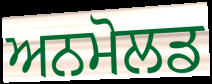
ਅਨਮੋਲਡ